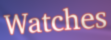
Watches